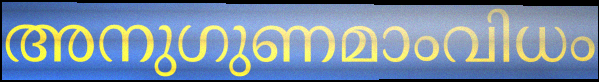
അനുഗുണമാംവിധം